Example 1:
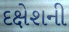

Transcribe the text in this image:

દક્ષેશની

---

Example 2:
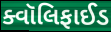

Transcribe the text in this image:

ક્વૉલિફાઈડ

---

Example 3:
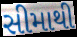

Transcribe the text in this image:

સીમાથી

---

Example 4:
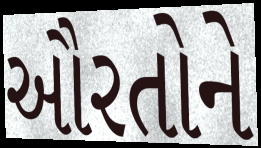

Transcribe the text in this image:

ઔરતોને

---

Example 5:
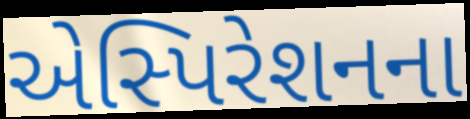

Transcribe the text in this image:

એસ્પિરેશનના